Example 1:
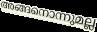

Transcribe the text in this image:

അങ്ങനൊന്നുമല്ല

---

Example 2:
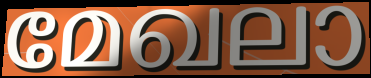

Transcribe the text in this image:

മേഖലാ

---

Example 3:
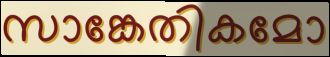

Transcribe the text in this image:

സാങ്കേതികമോ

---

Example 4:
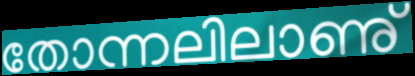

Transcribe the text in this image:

തോന്നലിലാണു്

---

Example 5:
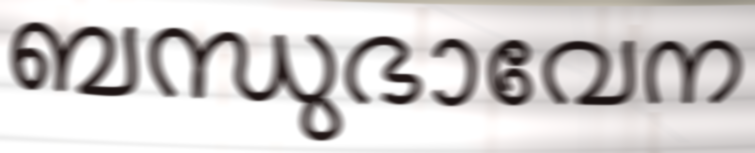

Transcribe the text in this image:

ബന്ധുഭാവേന